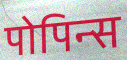
पोपिन्स